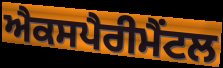
ਐਕਸਪੈਰੀਮੈਂਟਲ